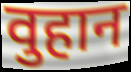
वुहान